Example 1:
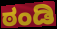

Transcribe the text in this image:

ಠಂಡಿ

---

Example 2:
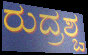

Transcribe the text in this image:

ರುದ್ರಶ್ಚ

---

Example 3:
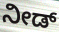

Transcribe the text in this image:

ನೀಡ್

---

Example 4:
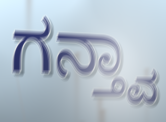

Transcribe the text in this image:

ಗನ್ತ್ವಾ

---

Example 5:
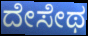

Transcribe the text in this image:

ದೇಸೇಥ